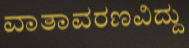
ವಾತಾವರಣವಿದ್ದು